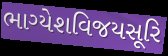
ભાગ્યેશવિજયસૂરિ